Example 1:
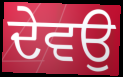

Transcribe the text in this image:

ਦੇਵਉ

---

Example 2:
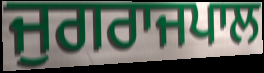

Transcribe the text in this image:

ਜੁਗਰਾਜਪਾਲ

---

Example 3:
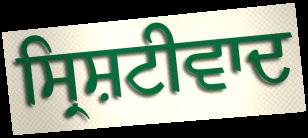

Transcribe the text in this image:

ਸ੍ਰਿਸ਼ਟੀਵਾਦ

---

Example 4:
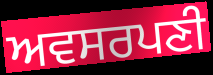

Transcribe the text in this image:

ਅਵਸਰਪਣੀ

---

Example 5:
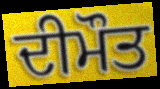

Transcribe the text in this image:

ਦੀਮੌਤ